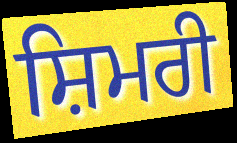
ਸ਼ਿਮਰੀ